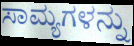
ಸಾಮ್ಯಗಳನ್ನು